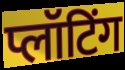
प्लॉटिंग